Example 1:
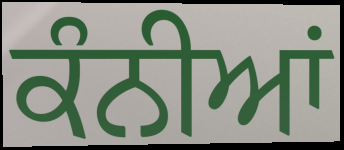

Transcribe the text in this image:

ਕੰਨੀਆਂ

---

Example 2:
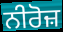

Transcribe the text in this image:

ਨੀਰੋਜ਼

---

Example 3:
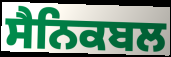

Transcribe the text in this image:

ਸੈਨਿਕਬਲ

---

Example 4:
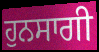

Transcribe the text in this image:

ਹੁਨਸਾਗੀ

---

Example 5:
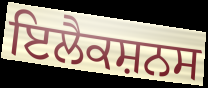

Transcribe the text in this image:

ਇਲੈਕਸ਼ਨਸ